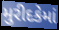
મુરીદકેમાં